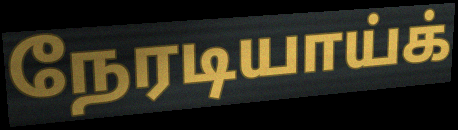
நேரடியாய்க்